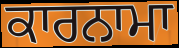
ਕਾਰਨਾਮਾ